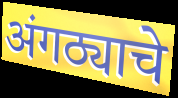
अंगठ्याचे